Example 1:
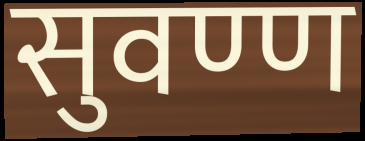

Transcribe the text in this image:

सुवण्ण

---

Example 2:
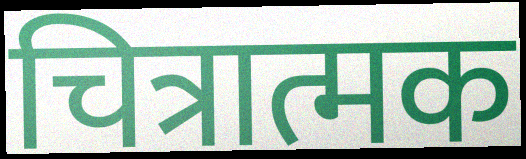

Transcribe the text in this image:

चित्रात्मक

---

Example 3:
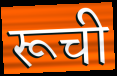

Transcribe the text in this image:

रूची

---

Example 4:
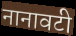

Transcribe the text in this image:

नानावटी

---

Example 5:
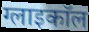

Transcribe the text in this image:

ग्लाइकॉल